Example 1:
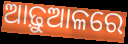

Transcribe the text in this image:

ଆଢ଼ୁଆଳରେ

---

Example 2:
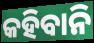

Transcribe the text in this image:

କହିବାନି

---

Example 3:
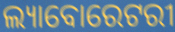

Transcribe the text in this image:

ଲ୍ୟାବୋରେଟରୀ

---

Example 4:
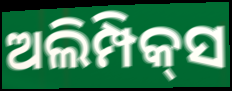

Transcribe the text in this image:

ଅଲିମ୍ପିକ୍‌ସ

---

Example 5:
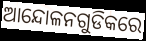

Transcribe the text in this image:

ଆନ୍ଦୋଳନଗୁଡିକରେ